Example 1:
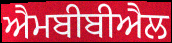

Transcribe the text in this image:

ਐਮਬੀਬੀਐਲ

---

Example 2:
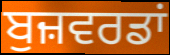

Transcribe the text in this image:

ਬੁਜ਼ਵਰਡਾਂ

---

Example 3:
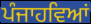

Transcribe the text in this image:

ਪੰਜਾਹਵਿਆਂ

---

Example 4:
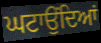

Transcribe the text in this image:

ਘਟਾਉਂਦਿਆਂ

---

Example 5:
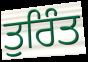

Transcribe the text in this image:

ਤੁਰਿੰਤ